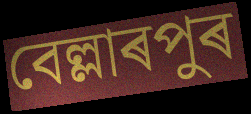
বেল্লাৰপুৰ